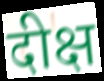
दीक्ष